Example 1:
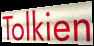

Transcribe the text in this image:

Tolkien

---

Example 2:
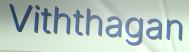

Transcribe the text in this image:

Viththagan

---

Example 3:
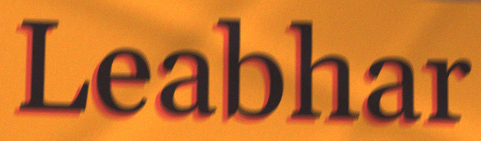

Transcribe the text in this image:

Leabhar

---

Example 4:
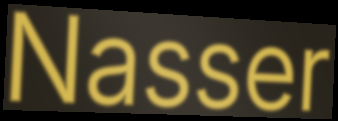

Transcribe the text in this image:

Nasser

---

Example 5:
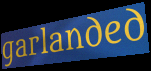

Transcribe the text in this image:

garlanded